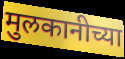
मुलकानीच्या